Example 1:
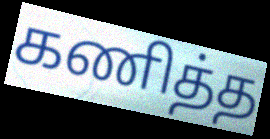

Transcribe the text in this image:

கணித்த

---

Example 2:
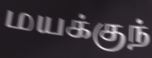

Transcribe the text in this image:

மயக்குந்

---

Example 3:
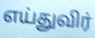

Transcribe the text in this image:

எய்துவிர்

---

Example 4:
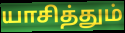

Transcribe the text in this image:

யாசித்தும்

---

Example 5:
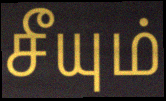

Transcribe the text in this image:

சீயும்